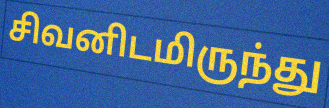
சிவனிடமிருந்து